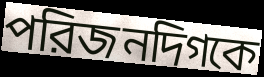
পরিজনদিগকে